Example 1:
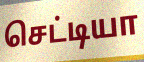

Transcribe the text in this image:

செட்டியா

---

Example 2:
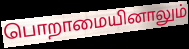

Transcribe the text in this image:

பொறாமையினாலும்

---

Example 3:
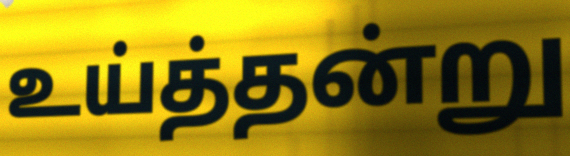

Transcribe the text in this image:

உய்த்தன்று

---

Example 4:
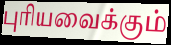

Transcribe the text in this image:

புரியவைக்கும்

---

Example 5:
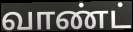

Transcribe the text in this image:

வாண்ட்